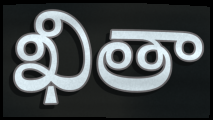
ఖితా